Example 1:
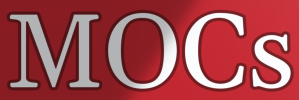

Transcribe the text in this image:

MOCs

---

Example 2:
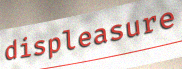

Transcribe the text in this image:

displeasure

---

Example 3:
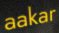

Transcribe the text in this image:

aakar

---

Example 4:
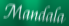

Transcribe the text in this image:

Mandala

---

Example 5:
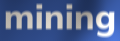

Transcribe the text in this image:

mining